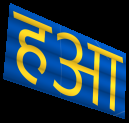
हआ